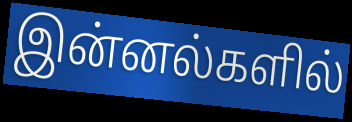
இன்னல்களில்